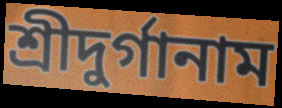
শ্রীদুর্গানাম